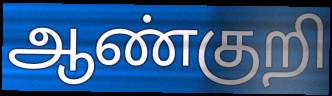
ஆண்குறி